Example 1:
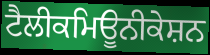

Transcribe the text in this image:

ਟੈਲੀਕਮਿਊਨੀਕੇਸ਼ਨ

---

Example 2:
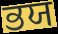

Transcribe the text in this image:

ਭਯ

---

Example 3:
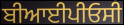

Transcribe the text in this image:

ਬੀਆਈਪੀਓਸੀ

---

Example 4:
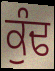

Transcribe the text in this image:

ਕੁੰਢ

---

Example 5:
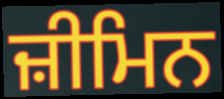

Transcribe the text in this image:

ਜ਼ੀਮਿਨ